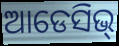
ଆଡେସିଭ୍